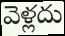
వెళ్లదు